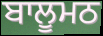
ਬਾਲੂਮਠ